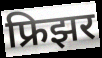
फ्रिझर